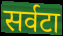
सर्वटा